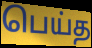
பெய்த